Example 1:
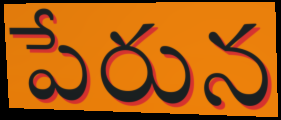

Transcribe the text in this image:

పేరున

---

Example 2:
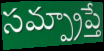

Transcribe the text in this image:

సమ్ప్రాప్తే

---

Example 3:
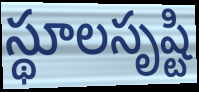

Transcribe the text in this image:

స్థూలసృష్టి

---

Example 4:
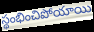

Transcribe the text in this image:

స్థంభించిపోయాయి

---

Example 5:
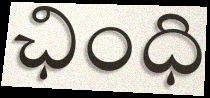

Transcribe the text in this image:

ఛింధి